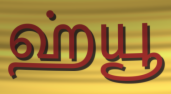
ஹ்யூ